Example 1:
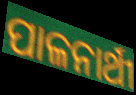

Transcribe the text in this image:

ପାଳନାର୍ଥୀ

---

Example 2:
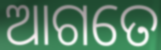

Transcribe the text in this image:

ଆଗତେ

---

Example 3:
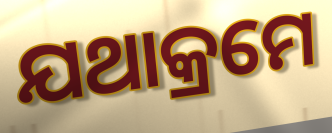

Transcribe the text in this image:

ଯଥାକ୍ରମେ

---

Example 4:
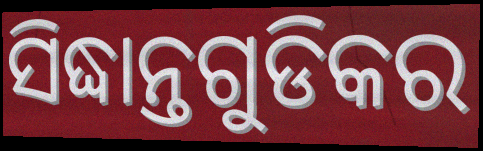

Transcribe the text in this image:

ସିଦ୍ଧାନ୍ତଗୁଡିକର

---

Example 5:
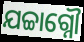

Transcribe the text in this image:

ଯଚ୍ଚାଗ୍ନୌ